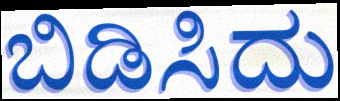
ಬಿಡಿಸಿದು